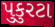
પુકુરટા